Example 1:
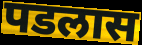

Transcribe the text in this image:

पडलास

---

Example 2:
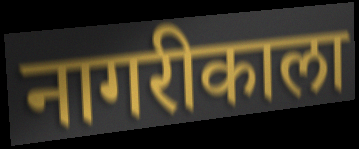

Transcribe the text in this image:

नागरीकाला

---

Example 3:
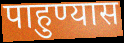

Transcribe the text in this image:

पाहुण्यास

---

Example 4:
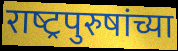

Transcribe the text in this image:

राष्ट्रपुरुषांच्या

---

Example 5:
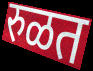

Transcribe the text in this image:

रुळत